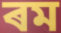
ৰম